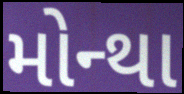
મોન્થા